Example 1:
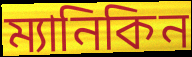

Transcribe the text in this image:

ম্যানিকিন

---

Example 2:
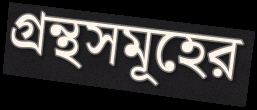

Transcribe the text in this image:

গ্রন্থসমূহের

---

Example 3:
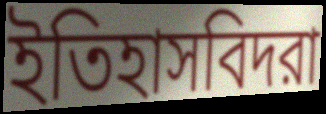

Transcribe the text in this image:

ইতিহাসবিদরা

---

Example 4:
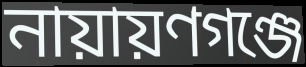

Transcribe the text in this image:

নায়ায়ণগঞ্জে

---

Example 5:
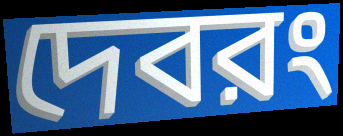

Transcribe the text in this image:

দেবরং